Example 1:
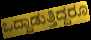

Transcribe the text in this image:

ಒದ್ದಾಡುತ್ತಿದ್ದರೂ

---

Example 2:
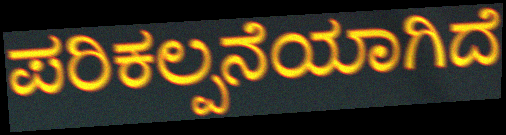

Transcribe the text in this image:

ಪರಿಕಲ್ಪನೆಯಾಗಿದೆ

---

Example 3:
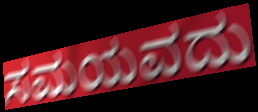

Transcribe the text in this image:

ಸಮಯವದು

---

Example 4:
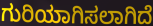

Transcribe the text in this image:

ಗುರಿಯಾಗಿಸಲಾಗಿದೆ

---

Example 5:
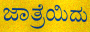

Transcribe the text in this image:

ಜಾತ್ರೆಯಿದು